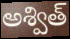
అశ్విత్